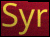
Syr